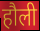
हौली